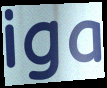
iga